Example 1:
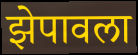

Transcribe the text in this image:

झेपावला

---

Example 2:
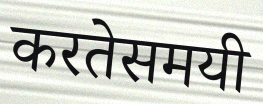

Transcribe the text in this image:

करतेसमयी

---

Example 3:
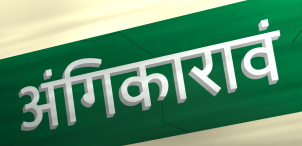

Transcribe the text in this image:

अंगिकारावं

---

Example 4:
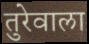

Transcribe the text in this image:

तुरेवाला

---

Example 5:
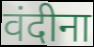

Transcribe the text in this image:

वंदीना